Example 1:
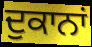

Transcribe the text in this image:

ਦੁਕਾਨਾਂ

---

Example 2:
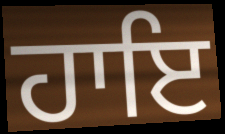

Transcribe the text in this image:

ਹਾਇ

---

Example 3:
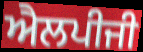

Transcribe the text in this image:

ਐਲਪੀਜੀ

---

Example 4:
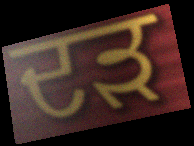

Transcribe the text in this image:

ਦੜ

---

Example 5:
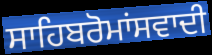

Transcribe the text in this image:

ਸਾਹਿਬਰੋਮਾਂਸਵਾਦੀ